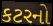
કટરનો